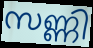
സണ്ണി